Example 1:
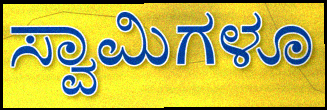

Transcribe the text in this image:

ಸ್ವಾಮಿಗಳೂ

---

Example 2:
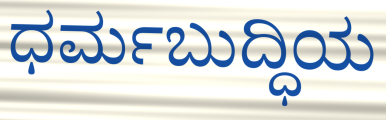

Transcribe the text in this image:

ಧರ್ಮಬುದ್ಧಿಯ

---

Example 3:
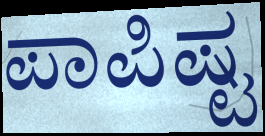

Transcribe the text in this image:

ಪಾಪಿಷ್ಟ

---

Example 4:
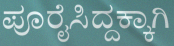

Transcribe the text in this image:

ಪೂರೈಸಿದ್ದಕ್ಕಾಗಿ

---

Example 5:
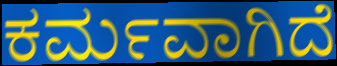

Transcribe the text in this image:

ಕರ್ಮವಾಗಿದೆ